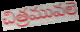
చిత్రమువలె